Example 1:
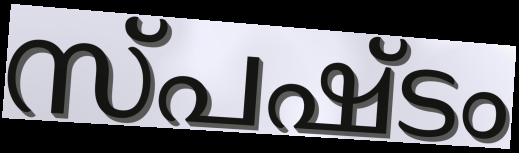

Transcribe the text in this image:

സ്പഷ്ടം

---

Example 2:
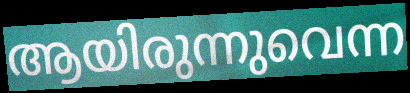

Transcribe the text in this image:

ആയിരുന്നുവെന്ന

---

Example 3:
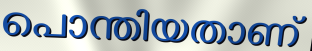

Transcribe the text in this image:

പൊന്തിയതാണ്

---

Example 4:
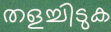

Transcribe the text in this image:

തളച്ചിടുക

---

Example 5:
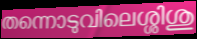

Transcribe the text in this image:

തന്നൊടുവിലെശ്ശിശു